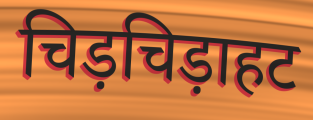
चिड़चिड़ाहट